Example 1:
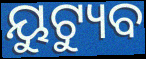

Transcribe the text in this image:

ୟୁଟ୍ୟୁବ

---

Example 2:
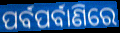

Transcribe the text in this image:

ପର୍ବପର୍ବାଣିରେ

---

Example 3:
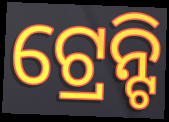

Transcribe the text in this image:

ଟ୍ରେନ୍ଟି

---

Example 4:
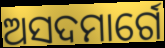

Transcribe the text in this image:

ଅସଦମାର୍ଗେ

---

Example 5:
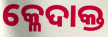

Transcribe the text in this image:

କ୍ଳେଦାକ୍ତ